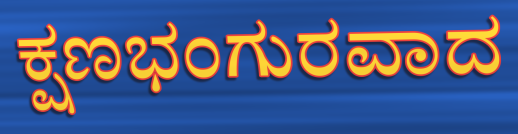
ಕ್ಷಣಭಂಗುರವಾದ